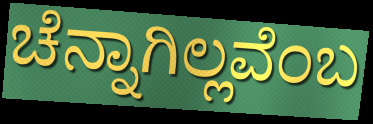
ಚೆನ್ನಾಗಿಲ್ಲವೆಂಬ